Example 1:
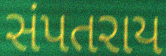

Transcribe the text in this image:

સંપતરાય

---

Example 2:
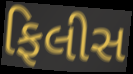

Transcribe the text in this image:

ફિલીસ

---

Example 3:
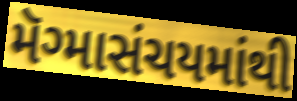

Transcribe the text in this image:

મૅગ્માસંચયમાંથી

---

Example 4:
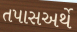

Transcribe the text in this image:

તપાસઅર્થે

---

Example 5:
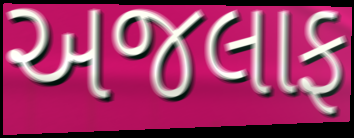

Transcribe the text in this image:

અજલાફ